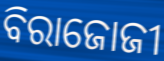
ବିରାଜୋଜୀ